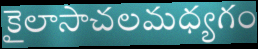
కైలాసాచలమధ్యగం